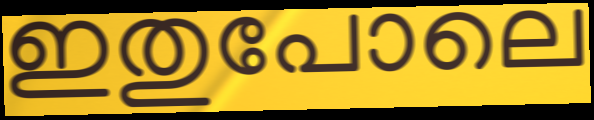
ഇതുപോലെ